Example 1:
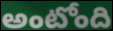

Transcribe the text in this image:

అంటోంది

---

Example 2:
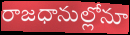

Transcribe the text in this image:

రాజధానుల్లోనూ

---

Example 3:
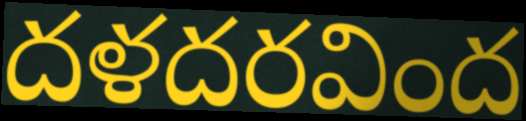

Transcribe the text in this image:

దళదరవింద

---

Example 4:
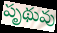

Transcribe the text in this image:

పృథువు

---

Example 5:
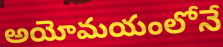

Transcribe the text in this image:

అయోమయంలోనే